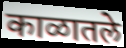
काळातले